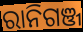
ରାନିଗଞ୍ଜ